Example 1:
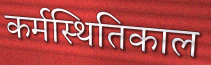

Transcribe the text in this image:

कर्मस्थितिकाल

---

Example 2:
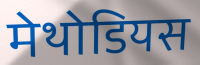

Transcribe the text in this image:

मेथोडियस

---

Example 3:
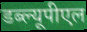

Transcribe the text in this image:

डब्ल्यूपीएल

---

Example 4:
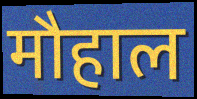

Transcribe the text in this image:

मौहाल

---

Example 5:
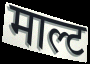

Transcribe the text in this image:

माल्ट